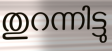
തുറന്നിട്ടു